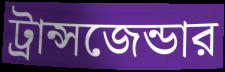
ট্রান্সজেন্ডার